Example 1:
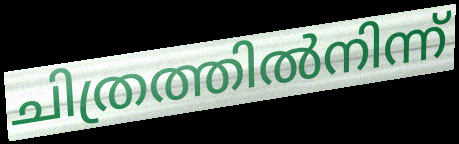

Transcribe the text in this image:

ചിത്രത്തിൽനിന്ന്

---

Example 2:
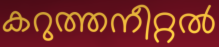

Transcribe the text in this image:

കറുത്തനീറ്റൽ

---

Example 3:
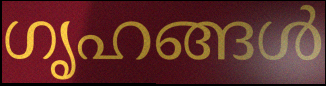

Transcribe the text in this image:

ഗൃഹങ്ങൾ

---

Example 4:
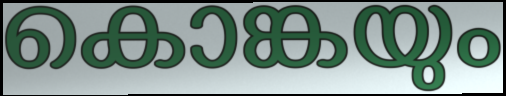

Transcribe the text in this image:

കൊങ്കയും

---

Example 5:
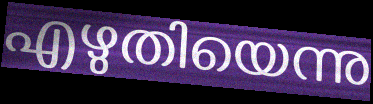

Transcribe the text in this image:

എഴുതിയെന്നു